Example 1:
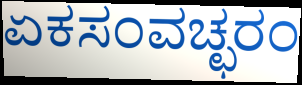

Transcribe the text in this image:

ಏಕಸಂವಚ್ಛರಂ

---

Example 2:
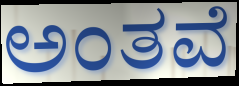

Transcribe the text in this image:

ಅಂತವೆ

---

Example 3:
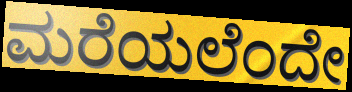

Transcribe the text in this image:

ಮರೆಯಲೆಂದೇ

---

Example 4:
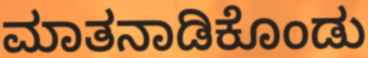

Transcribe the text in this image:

ಮಾತನಾಡಿಕೊಂಡು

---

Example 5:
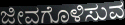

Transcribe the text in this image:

ಜೀವಗೊಳಿಸುವ